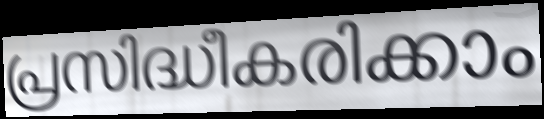
പ്രസിദ്ധീകരിക്കാം